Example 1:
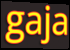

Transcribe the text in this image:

gaja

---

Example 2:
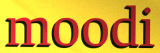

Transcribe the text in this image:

moodi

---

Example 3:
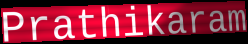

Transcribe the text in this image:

Prathikaram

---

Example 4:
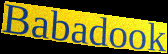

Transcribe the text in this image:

Babadook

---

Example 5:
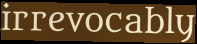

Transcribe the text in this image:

irrevocably